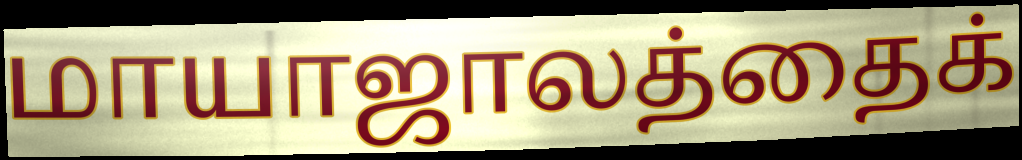
மாயாஜாலத்தைக்